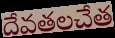
దేవతలచేత